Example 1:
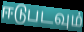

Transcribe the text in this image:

ஈடுபடவும்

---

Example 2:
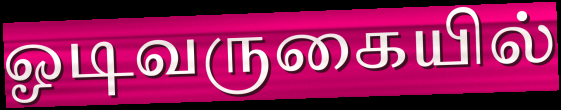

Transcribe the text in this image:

ஓடிவருகையில்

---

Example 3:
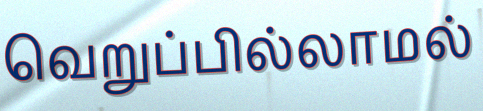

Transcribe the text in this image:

வெறுப்பில்லாமல்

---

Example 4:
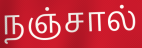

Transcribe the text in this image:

நஞ்சால்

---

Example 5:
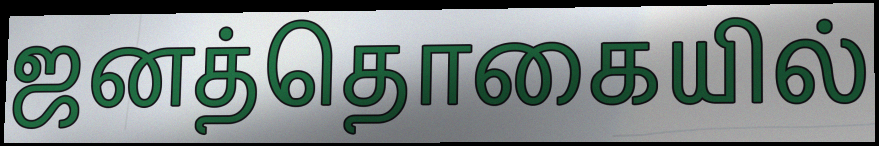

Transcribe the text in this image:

ஜனத்தொகையில்